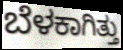
ಬೆಳಕಾಗಿತ್ತು